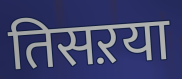
तिसऱया